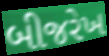
બીજરેખ